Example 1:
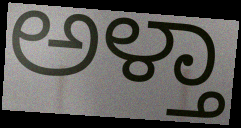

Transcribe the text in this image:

ಅಳ್ತಾ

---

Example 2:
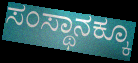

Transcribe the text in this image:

ಸಂಸ್ಥಾನಕ್ಕೂ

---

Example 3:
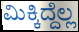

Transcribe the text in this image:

ಮಿಕ್ಕಿದ್ದೆಲ್ಲ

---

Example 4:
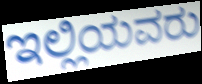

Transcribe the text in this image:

ಇಲ್ಲಿಯವರು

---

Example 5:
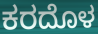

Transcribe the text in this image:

ಕರದೊಳ